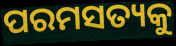
ପରମସତ୍ୟକୁ